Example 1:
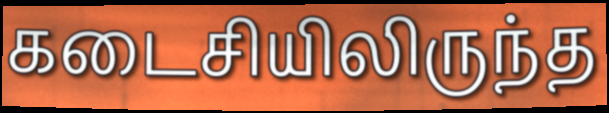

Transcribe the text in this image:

கடைசியிலிருந்த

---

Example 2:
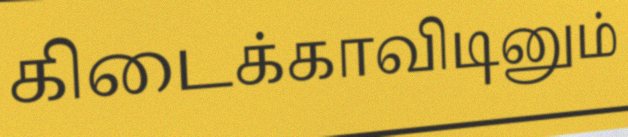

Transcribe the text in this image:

கிடைக்காவிடினும்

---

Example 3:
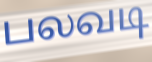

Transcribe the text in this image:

பலவடி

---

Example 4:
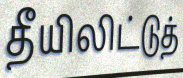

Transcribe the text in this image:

தீயிலிட்டுத்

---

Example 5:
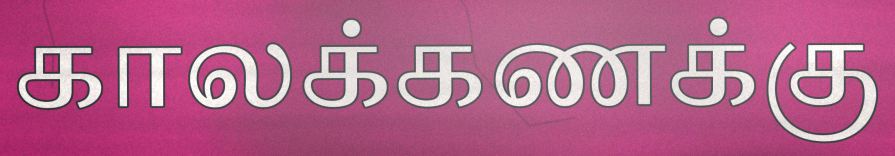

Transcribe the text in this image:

காலக்கணக்கு